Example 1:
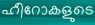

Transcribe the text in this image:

ഹീറോകളുടെ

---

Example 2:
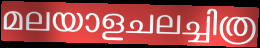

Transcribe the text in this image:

മലയാളചലച്ചിത്ര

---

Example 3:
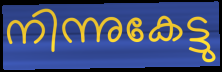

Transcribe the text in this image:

നിന്നുകേട്ടു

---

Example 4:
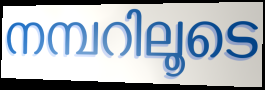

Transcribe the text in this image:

നമ്പറിലൂടെ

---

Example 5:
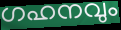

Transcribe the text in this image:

ഗഹനവും